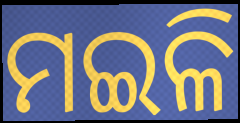
ମଇଳି